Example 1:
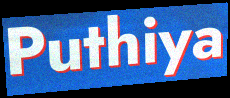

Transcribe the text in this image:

Puthiya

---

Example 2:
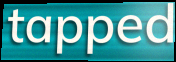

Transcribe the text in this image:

tapped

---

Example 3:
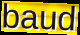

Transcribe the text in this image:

baud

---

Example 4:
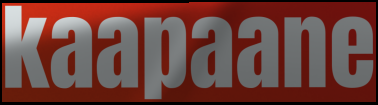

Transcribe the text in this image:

kaapaane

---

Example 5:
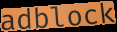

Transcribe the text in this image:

adblock